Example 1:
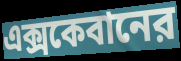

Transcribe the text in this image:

এক্সকেবানের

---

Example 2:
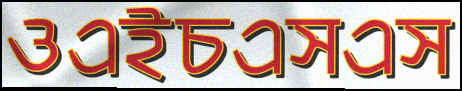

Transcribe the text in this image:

ওএইচএসএস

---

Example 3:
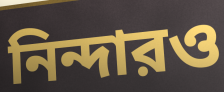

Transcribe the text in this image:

নিন্দারও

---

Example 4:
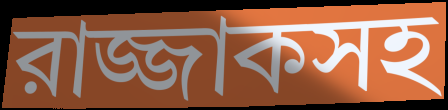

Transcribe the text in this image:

রাজ্জাকসহ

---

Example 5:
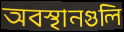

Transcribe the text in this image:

অবস্থানগুলি